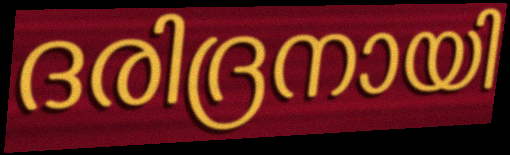
ദരിദ്രനായി